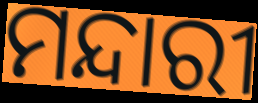
ମନ୍ଦାରୀ